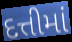
દત્તીમાં